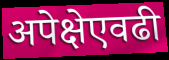
अपेक्षेएवढी